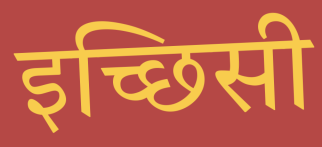
इच्छिसी